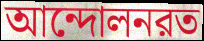
আন্দোলনরত